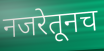
नजरेतूनच